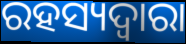
ରହସ୍ୟଦ୍ଵାରା